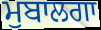
ਮੁਬਾਲਗਾ